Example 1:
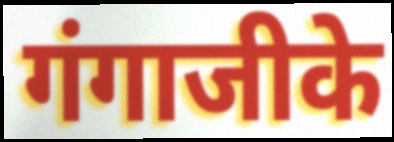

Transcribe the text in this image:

गंगाजीके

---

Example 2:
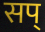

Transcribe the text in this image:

सप्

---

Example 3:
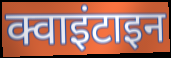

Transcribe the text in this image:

क्वाइंटाइन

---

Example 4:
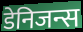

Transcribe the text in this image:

डेनिजन्स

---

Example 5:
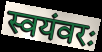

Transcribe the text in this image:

स्वयंवरः